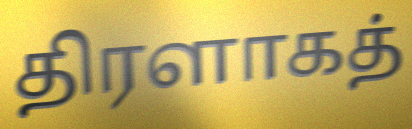
திரளாகத்